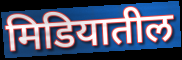
मिडियातील